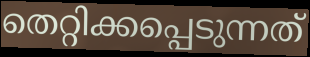
തെറ്റിക്കപ്പെടുന്നത്